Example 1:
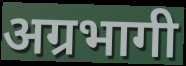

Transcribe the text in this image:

अग्रभागी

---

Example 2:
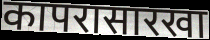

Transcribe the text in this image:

कापरासारखा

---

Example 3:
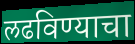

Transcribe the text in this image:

लढविण्याचा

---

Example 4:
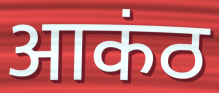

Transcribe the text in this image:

आकंठ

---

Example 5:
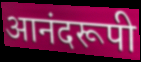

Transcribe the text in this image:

आनंदरूपी